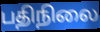
பதிநிலை